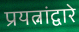
प्रयत्नांद्वारे